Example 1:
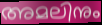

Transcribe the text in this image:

അമലിനും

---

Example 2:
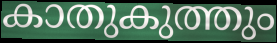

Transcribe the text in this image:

കാതുകുത്തും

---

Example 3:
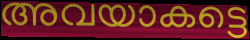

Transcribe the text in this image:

അവയാകട്ടെ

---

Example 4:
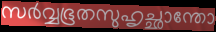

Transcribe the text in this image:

സർവ്വഭൂതസുഹൃച്ഛാന്തോ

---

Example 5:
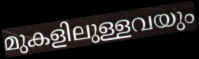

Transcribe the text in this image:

മുകളിലുള്ളവയും